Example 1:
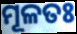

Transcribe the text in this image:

ମୂଳତଃ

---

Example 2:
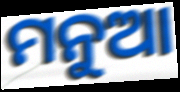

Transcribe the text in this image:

ମନୁଆ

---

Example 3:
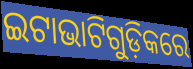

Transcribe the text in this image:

ଇଟାଭାଟିଗୁଡ଼ିକରେ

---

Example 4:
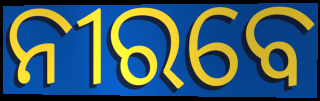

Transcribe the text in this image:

ନୀରବେ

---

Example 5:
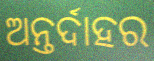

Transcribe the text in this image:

ଅନ୍ତର୍ଦାହର